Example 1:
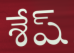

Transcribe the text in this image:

శేష్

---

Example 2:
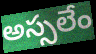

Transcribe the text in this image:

అస్సలేం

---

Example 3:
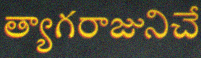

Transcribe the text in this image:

త్యాగరాజునిచే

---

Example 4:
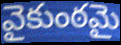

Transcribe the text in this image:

వైకుంఠమై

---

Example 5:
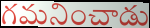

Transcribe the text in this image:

గమనించాడు